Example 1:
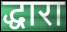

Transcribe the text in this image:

द्धारा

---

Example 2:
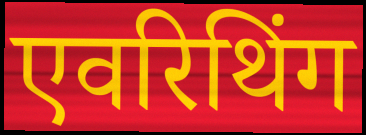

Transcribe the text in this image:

एवरिथिंग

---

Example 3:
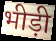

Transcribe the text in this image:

भीड़ी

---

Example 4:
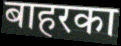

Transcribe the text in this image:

बाहरका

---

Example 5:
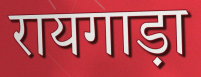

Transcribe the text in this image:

रायगाड़ा